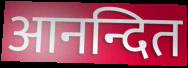
आनन्दित